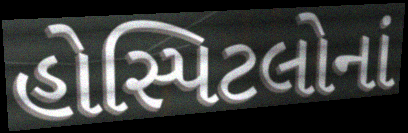
હોસ્પિટલોનાં